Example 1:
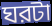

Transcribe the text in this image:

ঘরটা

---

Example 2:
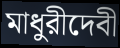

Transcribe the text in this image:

মাধুরীদেবী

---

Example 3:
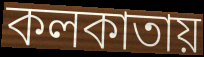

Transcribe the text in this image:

কলকাতায়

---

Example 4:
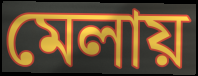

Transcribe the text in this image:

মেলায়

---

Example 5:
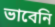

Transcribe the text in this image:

ভাবেনি